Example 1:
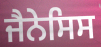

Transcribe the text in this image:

ਜੈਨੇਸਿਸ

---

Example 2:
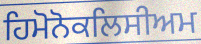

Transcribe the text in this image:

ਹਿਮੋਨੋਕਲਿਸੀਅਮ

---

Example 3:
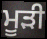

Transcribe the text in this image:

ਮੂੜੀ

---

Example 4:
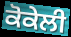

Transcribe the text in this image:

ਕੋਕੇਲੀ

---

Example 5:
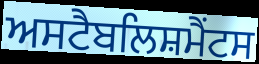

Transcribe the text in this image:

ਅਸਟੈਬਲਿਸ਼ਮੈਂਟਸ